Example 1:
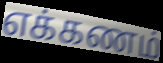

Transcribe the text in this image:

எக்கணம்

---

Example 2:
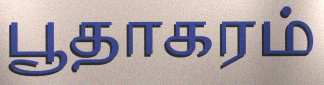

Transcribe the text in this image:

பூதாகரம்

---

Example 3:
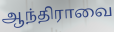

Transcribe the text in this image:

ஆந்திராவை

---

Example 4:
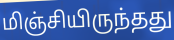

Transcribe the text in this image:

மிஞ்சியிருந்தது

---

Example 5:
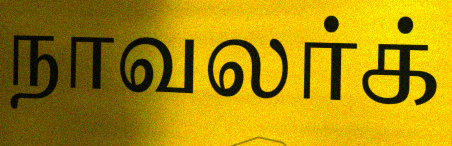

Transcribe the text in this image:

நாவலர்க்